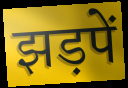
झड़पें